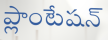
ప్లాంటేషన్